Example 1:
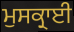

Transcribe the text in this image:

ਮੁਸਕ੍ਰਾਈ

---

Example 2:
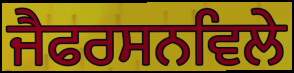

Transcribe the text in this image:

ਜੈਫਰਸਨਵਿਲੇ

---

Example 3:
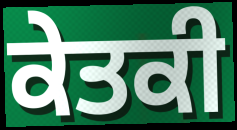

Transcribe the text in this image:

ਕੇਤਕੀ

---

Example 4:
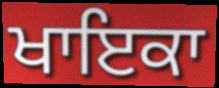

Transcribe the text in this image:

ਖਾਇਕਾ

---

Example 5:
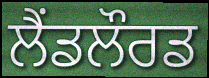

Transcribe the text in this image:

ਲੈਂਡਲੌਰਡ